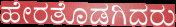
ಹೇರತೊಡಗಿದರು